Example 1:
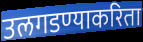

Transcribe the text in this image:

उलगडण्याकरिता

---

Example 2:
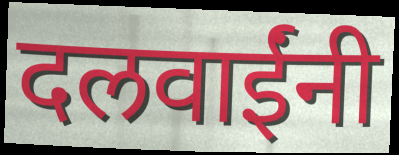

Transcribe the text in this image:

दलवाईंनी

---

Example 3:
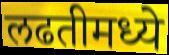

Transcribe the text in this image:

लढतीमध्ये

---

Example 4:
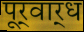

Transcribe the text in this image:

पूर्वार्ध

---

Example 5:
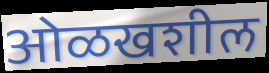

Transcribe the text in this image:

ओळखशील